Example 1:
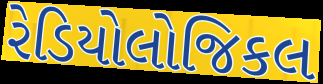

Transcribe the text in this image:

રેડિયોલોજિકલ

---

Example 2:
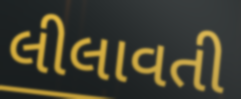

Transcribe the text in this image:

લીલાવતી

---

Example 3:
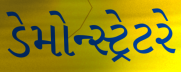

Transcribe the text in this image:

ડેમોન્સ્ટ્રેટરે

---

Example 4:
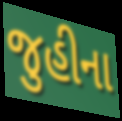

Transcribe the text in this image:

જુહીના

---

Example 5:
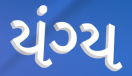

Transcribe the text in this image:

યંગ્ય